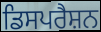
ਡਿਸਪਰੈਸ਼ਨ